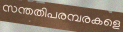
സന്തതിപരമ്പരകളെ